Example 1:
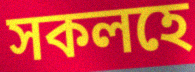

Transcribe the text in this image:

সকলহে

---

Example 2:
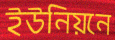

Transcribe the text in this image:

ইউনিয়নে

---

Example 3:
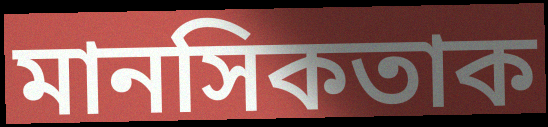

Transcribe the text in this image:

মানসিকতাক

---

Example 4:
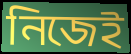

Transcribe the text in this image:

নিজেই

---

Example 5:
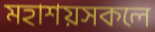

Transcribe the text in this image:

মহাশয়সকলে